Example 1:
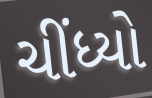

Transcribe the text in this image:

ચીંધ્યો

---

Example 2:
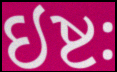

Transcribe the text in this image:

ઇષ્ટઃ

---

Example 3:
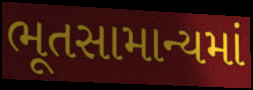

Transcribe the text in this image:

ભૂતસામાન્યમાં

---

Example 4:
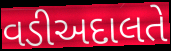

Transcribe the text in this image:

વડીઅદાલતે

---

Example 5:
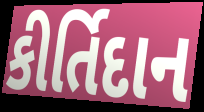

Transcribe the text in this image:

કીર્તિદાન